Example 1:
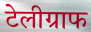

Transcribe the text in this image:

टेलीग्राफ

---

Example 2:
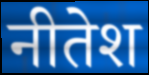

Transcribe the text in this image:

नीतेश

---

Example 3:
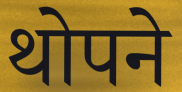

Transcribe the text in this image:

थोपने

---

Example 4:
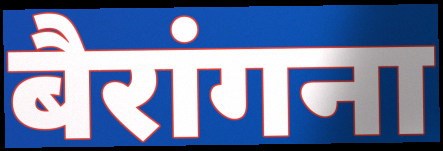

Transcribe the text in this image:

बैरांगना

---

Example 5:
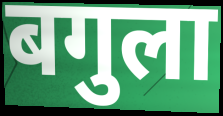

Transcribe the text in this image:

बगुला